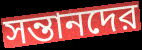
সন্তানদের